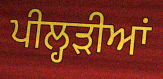
ਪੀਲ੍ਹੜੀਆਂ